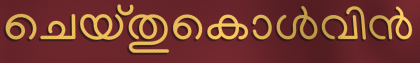
ചെയ്തുകൊൾവിൻ